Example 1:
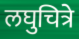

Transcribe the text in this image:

लघुचित्रे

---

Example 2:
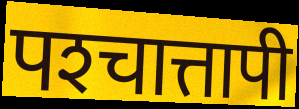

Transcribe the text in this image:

पश्‍चात्तापी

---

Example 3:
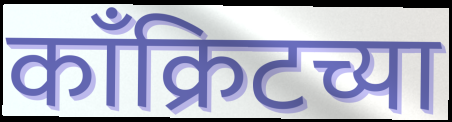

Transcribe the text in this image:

काँक्रिटच्या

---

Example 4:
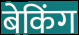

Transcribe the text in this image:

बेकिंग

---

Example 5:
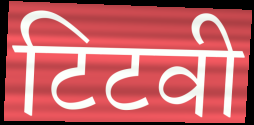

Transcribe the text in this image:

टिटवी